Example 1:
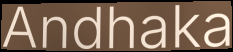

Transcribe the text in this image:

Andhaka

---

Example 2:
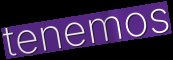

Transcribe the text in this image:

tenemos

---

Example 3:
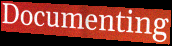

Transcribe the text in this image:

Documenting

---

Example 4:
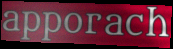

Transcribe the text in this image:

apporach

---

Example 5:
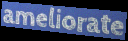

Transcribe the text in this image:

ameliorate